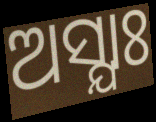
ଅସ୍ଯାଃ